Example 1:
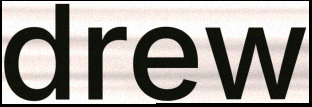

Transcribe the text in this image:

drew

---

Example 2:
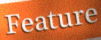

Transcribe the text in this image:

Feature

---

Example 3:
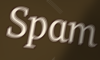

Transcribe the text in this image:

Spam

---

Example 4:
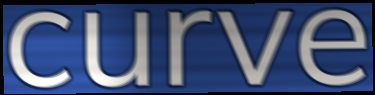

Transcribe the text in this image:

curve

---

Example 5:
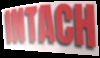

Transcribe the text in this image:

INTACH